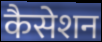
कैसेशन